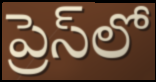
ప్రెస్‌లో